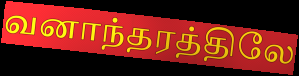
வனாந்தரத்திலே